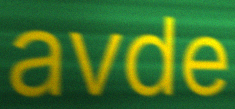
avde